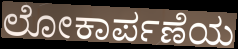
ಲೋಕಾರ್ಪಣೆಯ